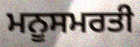
ਮਨੂਸਮਰਤੀ